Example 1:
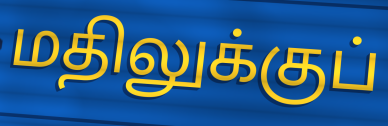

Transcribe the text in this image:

மதிலுக்குப்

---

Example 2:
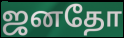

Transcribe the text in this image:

ஜனதோ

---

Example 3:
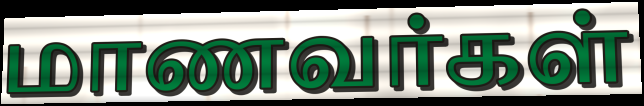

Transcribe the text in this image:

மாணவர்கள்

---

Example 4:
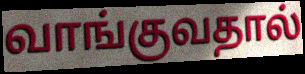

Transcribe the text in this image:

வாங்குவதால்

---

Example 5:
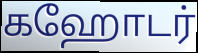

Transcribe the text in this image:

கஹோடர்